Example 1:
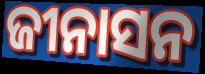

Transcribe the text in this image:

ଜୀନାସନ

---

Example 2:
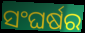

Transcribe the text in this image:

ସଂଘର୍ଷର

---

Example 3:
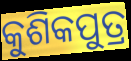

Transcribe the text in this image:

କୁଶିକପୁତ୍ର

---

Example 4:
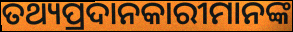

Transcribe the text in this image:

ତଥ୍ୟପ୍ରଦାନକାରୀମାନଙ୍କ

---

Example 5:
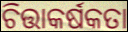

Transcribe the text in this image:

ଚିତ୍ତାକର୍ଷକତା